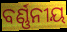
ବର୍ଣ୍ଣନୀୟ